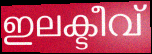
ഇലക്ടീവ്